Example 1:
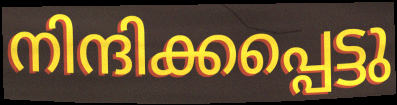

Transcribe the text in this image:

നിന്ദിക്കപ്പെട്ടു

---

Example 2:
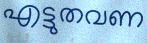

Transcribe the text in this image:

എട്ടുതവണ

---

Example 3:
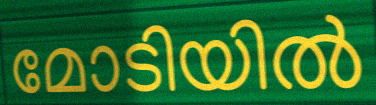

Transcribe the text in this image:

മോടിയിൽ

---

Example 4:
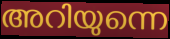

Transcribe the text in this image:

അറിയുന്നെ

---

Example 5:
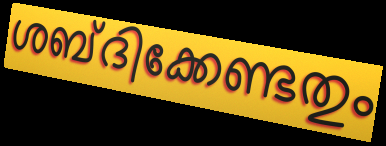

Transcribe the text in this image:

ശബ്ദിക്കേണ്ടതും